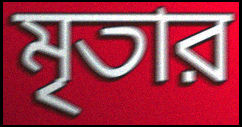
মৃতার